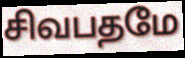
சிவபதமே